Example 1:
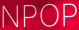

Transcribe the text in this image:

NPOP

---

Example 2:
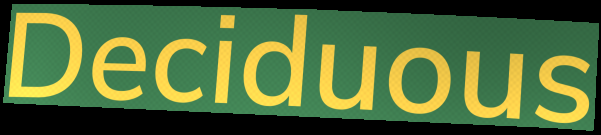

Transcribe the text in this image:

Deciduous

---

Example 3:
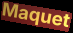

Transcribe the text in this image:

Maquet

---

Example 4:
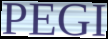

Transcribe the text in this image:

PEGI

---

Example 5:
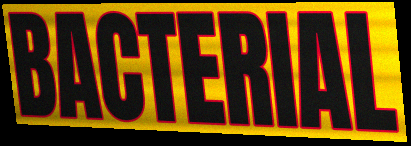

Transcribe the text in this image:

BACTERIAL